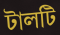
টালটি